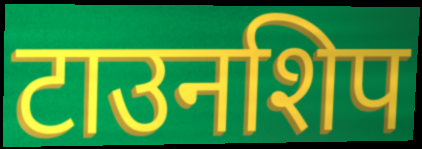
टाउनशिप